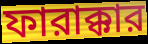
ফারাক্কার